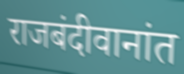
राजबंदीवानांत